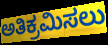
ಅತಿಕ್ರಮಿಸಲು